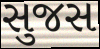
સુજસ